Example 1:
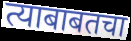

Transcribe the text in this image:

त्याबाबतचा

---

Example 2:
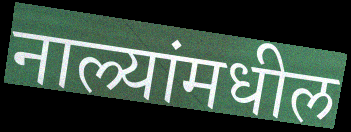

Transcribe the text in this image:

नाल्यांमधील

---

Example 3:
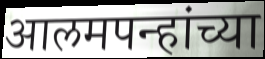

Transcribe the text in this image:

आलमपन्हांच्या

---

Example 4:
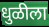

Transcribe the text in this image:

धुळीला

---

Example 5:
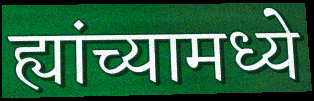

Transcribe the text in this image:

ह्यांच्यामध्ये